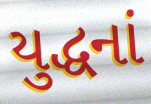
યુદ્ધનાં